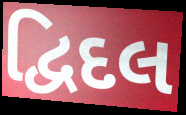
દ્વિદલ